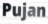
Pujan